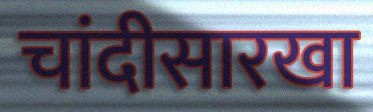
चांदीसारखा